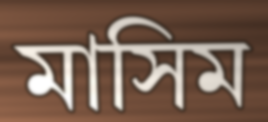
মাসিম